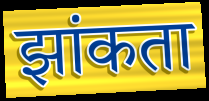
झांकता